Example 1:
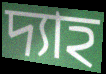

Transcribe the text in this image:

দ্যাহ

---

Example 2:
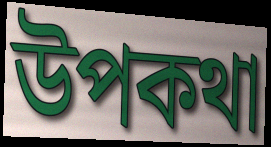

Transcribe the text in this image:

উপকথা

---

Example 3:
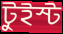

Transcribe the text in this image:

টুইস্ট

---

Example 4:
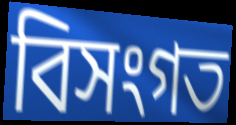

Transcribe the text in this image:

বিসংগত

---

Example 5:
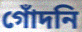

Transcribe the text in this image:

গোঁদনি